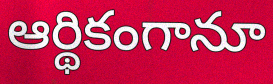
ఆర్థికంగానూ